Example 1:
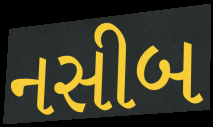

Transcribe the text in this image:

નસીબ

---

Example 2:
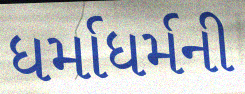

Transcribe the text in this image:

ધર્માધર્મની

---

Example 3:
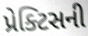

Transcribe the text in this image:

પ્રેક્ટિસની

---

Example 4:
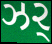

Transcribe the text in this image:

ઝર્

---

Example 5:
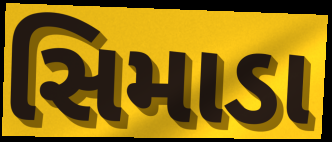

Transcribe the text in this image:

સિમાડા